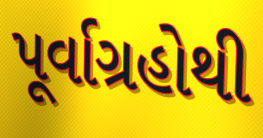
પૂર્વાગ્રહોથી